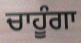
ਚਾਹੂੰਗਾ